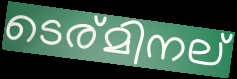
ടെര്മിനല്